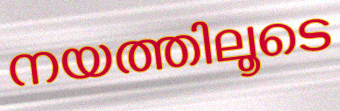
നയത്തിലൂടെ